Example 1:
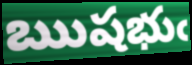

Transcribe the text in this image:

ఋషభుఁ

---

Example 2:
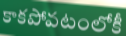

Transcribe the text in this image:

కాకపోవటంలోకీ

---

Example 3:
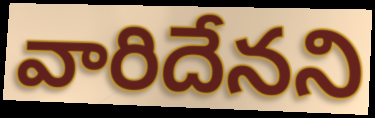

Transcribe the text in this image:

వారిదేనని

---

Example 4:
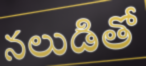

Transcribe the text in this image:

నలుడితో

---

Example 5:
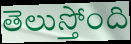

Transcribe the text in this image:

తెలుస్తోంది